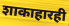
शाकाहारही